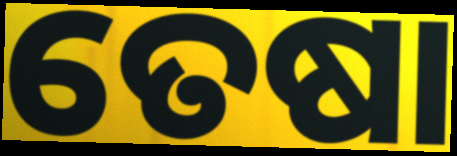
ତେଷା